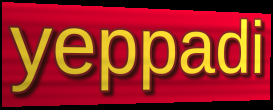
yeppadi